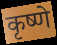
कृष्णे